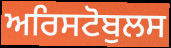
ਅਰਿਸਟੋਬੁਲਸ